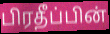
பிரதீப்பின்